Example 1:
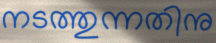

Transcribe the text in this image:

നടത്തുന്നതിനു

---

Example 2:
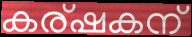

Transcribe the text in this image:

കര്ഷകന്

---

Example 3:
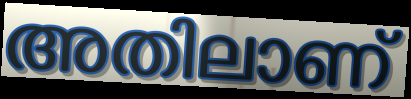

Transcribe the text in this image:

അതിലാണ്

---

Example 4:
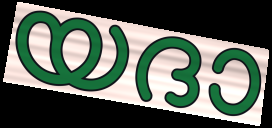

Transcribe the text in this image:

യദാ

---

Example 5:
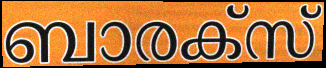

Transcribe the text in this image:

ബാരക്സ്